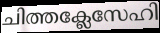
ചിത്തക്ലേസേഹി